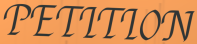
PETITION